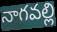
నాగవల్లి